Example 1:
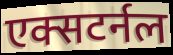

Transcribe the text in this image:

एक्सटर्नल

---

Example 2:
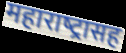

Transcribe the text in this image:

महाराष्ट्रासह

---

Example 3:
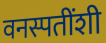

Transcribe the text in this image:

वनस्पतींशी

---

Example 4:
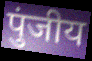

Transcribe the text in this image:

पुंजीय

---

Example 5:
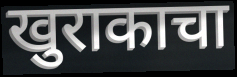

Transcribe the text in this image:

खुराकाचा